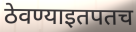
ठेवण्याइतपतच